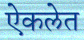
ऐकलेत